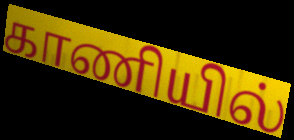
காணியில்